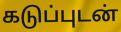
கடுப்புடன்